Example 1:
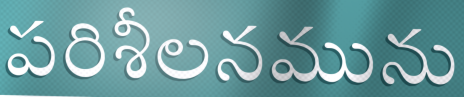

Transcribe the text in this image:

పరిశీలనమును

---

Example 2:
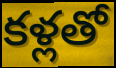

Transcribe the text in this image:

కళ్లతో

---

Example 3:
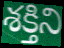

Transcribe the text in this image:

శక్తిని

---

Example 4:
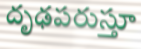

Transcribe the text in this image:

దృఢపరుస్తూ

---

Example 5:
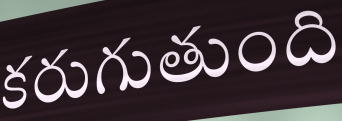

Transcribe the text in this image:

కరుగుతుంది